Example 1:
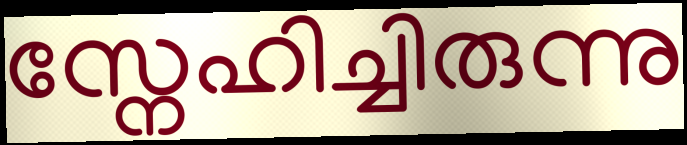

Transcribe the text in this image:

സ്നേഹിച്ചിരുന്നു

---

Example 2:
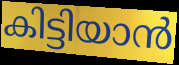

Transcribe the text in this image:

കിട്ടിയാൻ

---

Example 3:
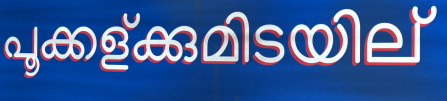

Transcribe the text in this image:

പൂക്കള്ക്കുമിടയില്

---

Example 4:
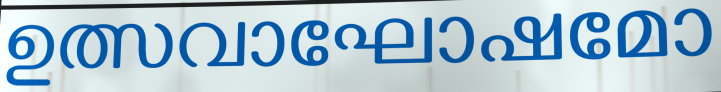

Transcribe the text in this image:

ഉത്സവാഘോഷമോ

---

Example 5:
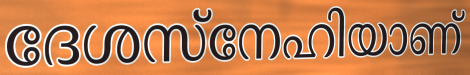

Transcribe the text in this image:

ദേശസ്നേഹിയാണ്